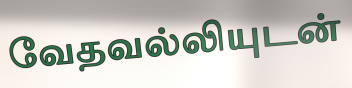
வேதவல்லியுடன்